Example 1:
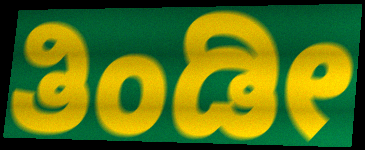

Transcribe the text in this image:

ತಿಂಡೀ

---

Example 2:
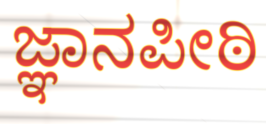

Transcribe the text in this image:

ಜ್ಞಾನಪೀಠಿ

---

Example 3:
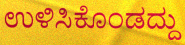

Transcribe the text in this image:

ಉಳಿಸಿಕೊಂಡದ್ದು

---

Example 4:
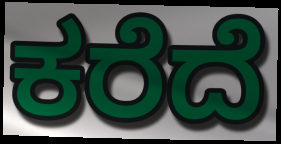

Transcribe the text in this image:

ಕರೆದೆ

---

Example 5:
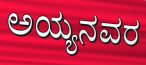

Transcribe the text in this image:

ಅಯ್ಯನವರ